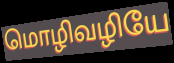
மொழிவழியே